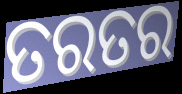
ତରତର